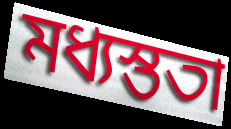
মধ্যস্ততা